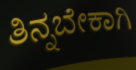
ತಿನ್ನಬೇಕಾಗಿ